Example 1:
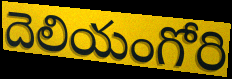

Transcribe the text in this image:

దెలియంగోరి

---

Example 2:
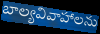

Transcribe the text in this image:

బాల్యవివాహాలను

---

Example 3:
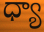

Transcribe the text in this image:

ధ్యా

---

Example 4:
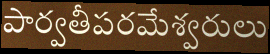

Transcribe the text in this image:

పార్వతీపరమేశ్వరులు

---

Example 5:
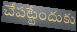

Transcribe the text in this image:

చేపట్టేందుకు